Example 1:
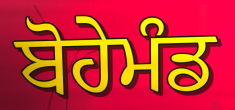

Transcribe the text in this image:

ਬੋਹੇਮੰਡ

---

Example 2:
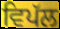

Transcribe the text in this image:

ਵਿਪੱਲ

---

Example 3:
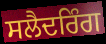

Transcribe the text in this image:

ਸਲੈਦਰਿੰਗ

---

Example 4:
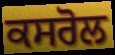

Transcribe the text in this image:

ਕਸਰੋਲ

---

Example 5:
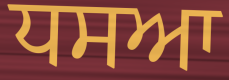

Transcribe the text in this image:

ਧਸਆ